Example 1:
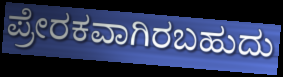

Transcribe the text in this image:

ಪ್ರೇರಕವಾಗಿರಬಹುದು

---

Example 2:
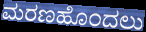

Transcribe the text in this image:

ಮರಣಹೊಂದಲು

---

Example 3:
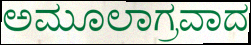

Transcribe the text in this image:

ಅಮೂಲಾಗ್ರವಾದ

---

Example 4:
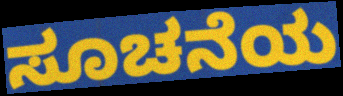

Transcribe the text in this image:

ಸೂಚನೆಯ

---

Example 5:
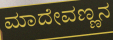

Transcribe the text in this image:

ಮಾದೇವಣ್ಣನ